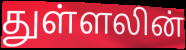
துள்ளலின்